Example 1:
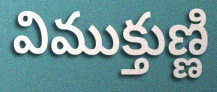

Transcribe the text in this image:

విముక్తుణ్ణి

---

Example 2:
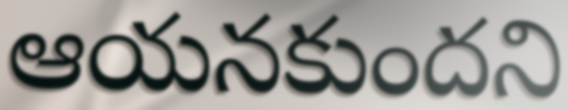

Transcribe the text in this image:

ఆయనకుందని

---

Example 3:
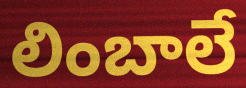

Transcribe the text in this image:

లింబాలే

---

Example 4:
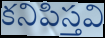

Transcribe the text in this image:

కనిపిస్తవి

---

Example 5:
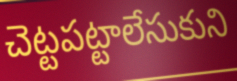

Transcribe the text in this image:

చెట్టపట్టాలేసుకుని